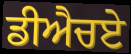
ਡੀਐਚਏ